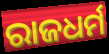
ରାଜଧର୍ମ